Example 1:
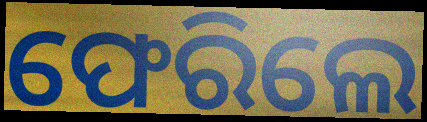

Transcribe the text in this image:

ଫେରିଲେ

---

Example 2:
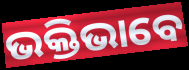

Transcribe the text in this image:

ଭକ୍ତିଭାବେ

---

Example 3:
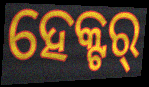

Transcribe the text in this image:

ହେକ୍ଟର୍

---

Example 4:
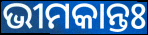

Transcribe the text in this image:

ଭୀମକାନ୍ତଃ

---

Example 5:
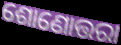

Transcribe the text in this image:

ଶୋଣୋତ୍ତରା